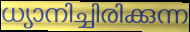
ധ്യാനിച്ചിരിക്കുന്ന